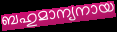
ബഹുമാന്യനായ